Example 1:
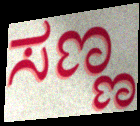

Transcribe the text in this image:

ಸಣ್ಣ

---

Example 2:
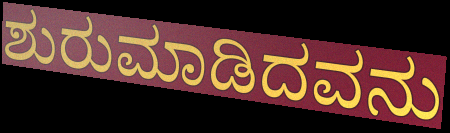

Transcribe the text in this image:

ಶುರುಮಾಡಿದವನು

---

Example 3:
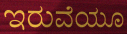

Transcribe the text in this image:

ಇರುವೆಯೂ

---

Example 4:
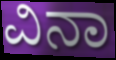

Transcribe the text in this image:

ವಿನಾ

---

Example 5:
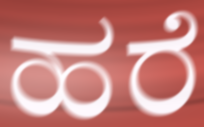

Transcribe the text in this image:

ಹರೆ